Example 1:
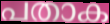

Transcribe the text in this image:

പതാക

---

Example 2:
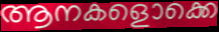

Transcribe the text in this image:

ആനകളൊക്കെ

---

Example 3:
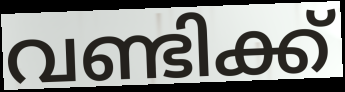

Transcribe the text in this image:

വണ്ടിക്ക്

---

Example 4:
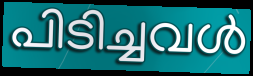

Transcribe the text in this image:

പിടിച്ചവൾ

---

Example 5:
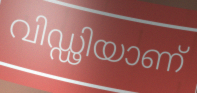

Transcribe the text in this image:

വിഡ്ഢിയാണ്